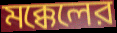
মক্কেলের